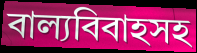
বাল্যবিবাহসহ